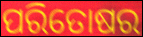
ପରିତୋଷର